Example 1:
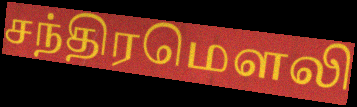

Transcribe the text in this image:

சந்திரமௌலி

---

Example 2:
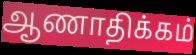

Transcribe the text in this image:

ஆணாதிக்கம்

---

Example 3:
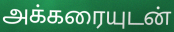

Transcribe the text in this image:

அக்கரையுடன்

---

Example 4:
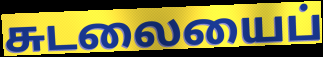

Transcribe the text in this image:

சுடலையைப்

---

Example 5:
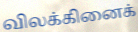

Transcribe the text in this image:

விலக்கினைக்